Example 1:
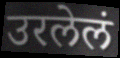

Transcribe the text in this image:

उरलेलं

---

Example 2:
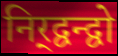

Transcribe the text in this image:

निर्द्वन्द्वो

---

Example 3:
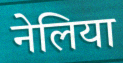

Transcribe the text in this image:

नेलिया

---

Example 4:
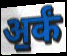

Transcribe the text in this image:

अ॒र्कं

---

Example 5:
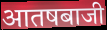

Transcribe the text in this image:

आतषबाजी